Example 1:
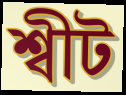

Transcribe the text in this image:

শ্বীট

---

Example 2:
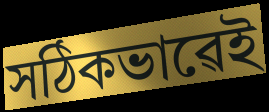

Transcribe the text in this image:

সঠিকভাৱেই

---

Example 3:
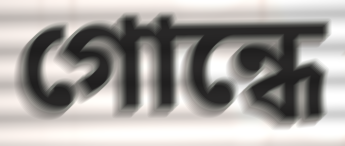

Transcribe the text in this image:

গোন্ধে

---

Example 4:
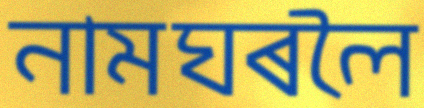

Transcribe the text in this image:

নামঘৰলৈ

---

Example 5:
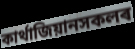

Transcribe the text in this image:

কাৰ্থাজিয়ানসকলৰ